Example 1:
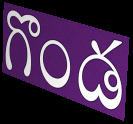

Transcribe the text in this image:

గొండ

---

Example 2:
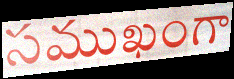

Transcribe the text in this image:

సముఖంగా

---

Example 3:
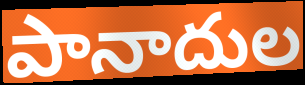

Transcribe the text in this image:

పానాదుల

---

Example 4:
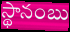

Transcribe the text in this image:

స్థానంబు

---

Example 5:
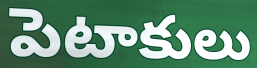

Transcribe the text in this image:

పెటాకులు